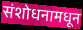
संशोधनामधून